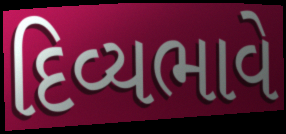
દિવ્યભાવે